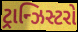
ટ્રાન્ઝિસ્ટરો